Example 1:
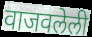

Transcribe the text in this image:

वाजवलेली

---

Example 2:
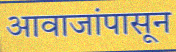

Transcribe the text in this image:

आवाजांपासून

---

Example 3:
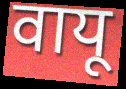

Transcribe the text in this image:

वायू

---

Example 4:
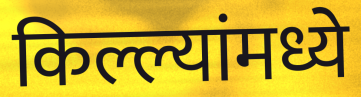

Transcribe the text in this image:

किल्ल्यांमध्ये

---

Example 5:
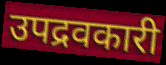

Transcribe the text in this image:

उपद्रवकारी